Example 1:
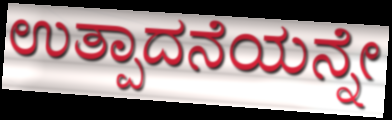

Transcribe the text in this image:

ಉತ್ಪಾದನೆಯನ್ನೇ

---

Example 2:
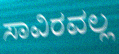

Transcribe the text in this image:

ಸಾವಿರವಲ್ಲ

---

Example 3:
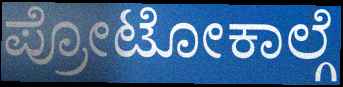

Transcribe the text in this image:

ಪ್ರೋಟೋಕಾಲ್ಗೆ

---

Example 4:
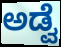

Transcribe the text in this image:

ಅಡ್ವೆ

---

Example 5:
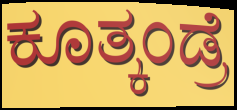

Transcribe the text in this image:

ಕೂತ್ಕಂಡ್ರೆ